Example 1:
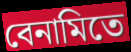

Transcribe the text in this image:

বেনামিতে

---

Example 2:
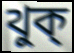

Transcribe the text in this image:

থুক্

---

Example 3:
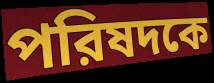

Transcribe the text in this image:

পরিষদকে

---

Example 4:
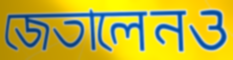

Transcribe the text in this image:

জেতালেনও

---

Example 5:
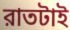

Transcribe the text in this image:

রাতটাই